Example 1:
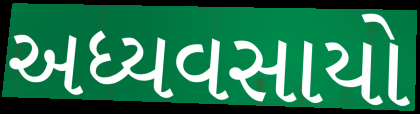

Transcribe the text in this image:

અધ્યવસાયો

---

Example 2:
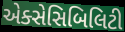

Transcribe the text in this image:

એક્સેસિબિલિટી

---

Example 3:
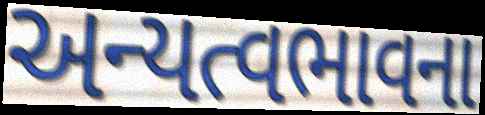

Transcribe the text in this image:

અન્યત્વભાવના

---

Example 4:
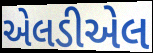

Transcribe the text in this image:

એલડીએલ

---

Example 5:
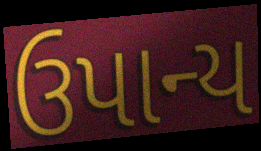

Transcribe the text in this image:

ઉપાન્ય